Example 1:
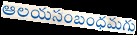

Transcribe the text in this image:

ఆలయసంబంధమగు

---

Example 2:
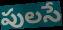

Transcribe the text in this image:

పులసే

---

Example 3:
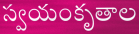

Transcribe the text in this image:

స్వయంకృతాల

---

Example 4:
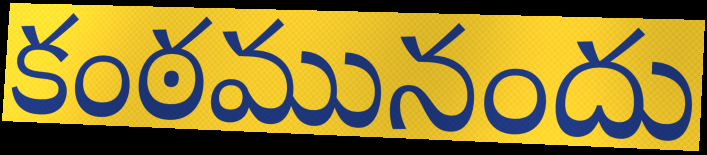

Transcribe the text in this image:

కంఠమునందు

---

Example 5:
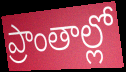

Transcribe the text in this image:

ప్రాంతాల్లో